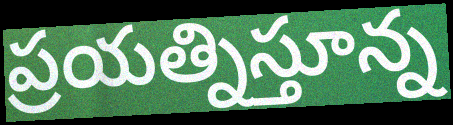
ప్రయత్నిస్తూన్న